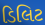
ડિલિટ